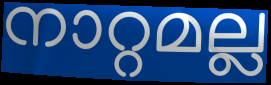
നാറ്റമല്ല